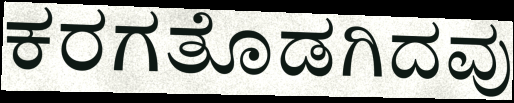
ಕರಗತೊಡಗಿದವು